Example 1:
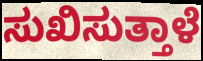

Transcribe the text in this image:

ಸುಖಿಸುತ್ತಾಳೆ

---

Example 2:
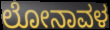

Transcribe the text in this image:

ಲೋನಾವಳ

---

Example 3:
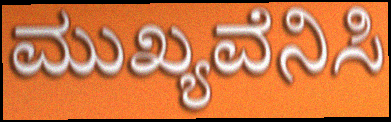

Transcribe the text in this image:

ಮುಖ್ಯವೆನಿಸಿ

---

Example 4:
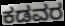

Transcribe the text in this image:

ಕಡವರ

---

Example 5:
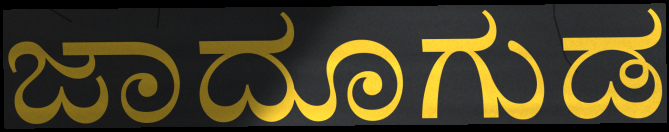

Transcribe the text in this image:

ಜಾದೂಗುಡ